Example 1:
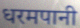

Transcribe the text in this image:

धरमपानी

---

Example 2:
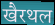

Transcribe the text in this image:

खैरथल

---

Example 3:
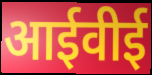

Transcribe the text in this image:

आईवीई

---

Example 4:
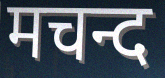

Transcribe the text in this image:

मचन्द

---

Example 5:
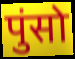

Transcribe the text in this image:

पुंसो